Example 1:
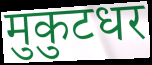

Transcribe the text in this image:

मुकुटधर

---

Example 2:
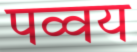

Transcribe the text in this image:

पव्वय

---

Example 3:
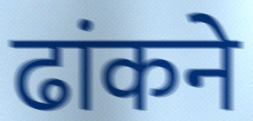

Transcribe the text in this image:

ढांकने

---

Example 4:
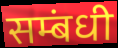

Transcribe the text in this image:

सम्बंधी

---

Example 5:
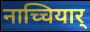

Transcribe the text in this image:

नाच्चियार्